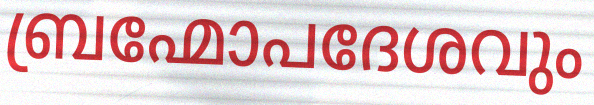
ബ്രഹ്മോപദേശവും